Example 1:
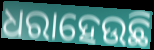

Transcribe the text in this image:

ଧରାହେଉଛି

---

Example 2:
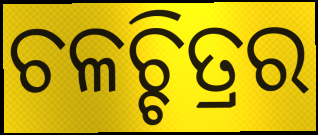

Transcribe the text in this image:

ଚଳଚ୍ଚିତ୍ରର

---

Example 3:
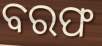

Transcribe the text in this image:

ବରଫ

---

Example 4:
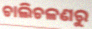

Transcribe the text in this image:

ଚାଲିଚଳଣରୁ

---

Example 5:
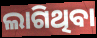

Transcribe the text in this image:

ଲାଗିଥିବା